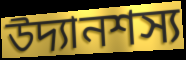
উদ্যানশস্য